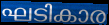
ഘടികാര